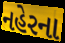
નહેરના